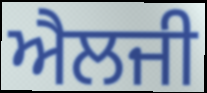
ਐਲਜੀ